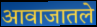
आवाजातले